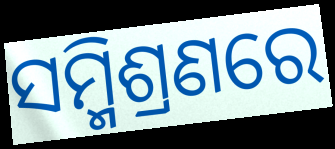
ସମ୍ମିଶ୍ରଣରେ